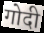
गोदी